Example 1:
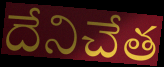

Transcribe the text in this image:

దేనిచేత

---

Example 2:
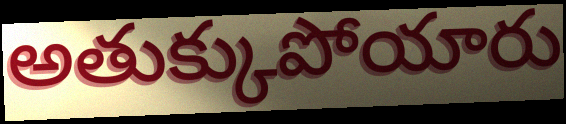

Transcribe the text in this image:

అతుక్కుపోయారు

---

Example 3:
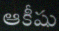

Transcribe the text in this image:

ఆకీషు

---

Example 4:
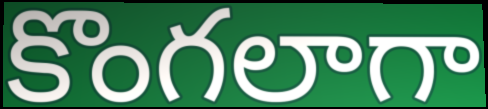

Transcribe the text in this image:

కొంగలాగా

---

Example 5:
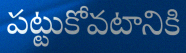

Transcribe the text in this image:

పట్టుకోవటానికి